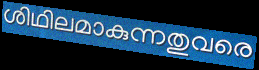
ശിഥിലമാകുന്നതുവരെ